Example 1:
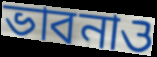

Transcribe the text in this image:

ভাবনাও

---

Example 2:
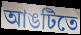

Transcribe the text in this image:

আঙটিতে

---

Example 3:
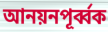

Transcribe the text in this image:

আনয়নপূর্ব্বক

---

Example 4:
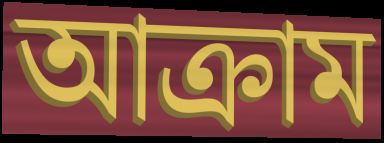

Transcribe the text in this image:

আক্রাম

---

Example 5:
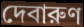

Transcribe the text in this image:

দেবারুণ